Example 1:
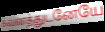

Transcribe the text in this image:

கவனத்துடனேயே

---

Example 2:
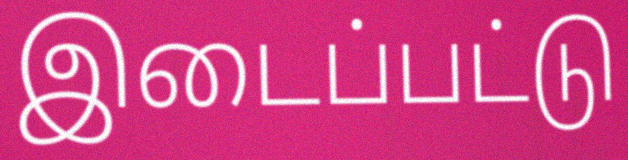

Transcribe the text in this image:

இடைப்பட்டு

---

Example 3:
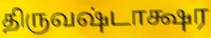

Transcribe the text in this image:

திருவஷ்டாக்ஷர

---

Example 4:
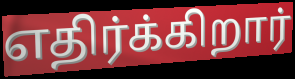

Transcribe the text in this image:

எதிர்க்கிறார்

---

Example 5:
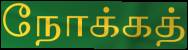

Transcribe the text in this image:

நோக்கத்